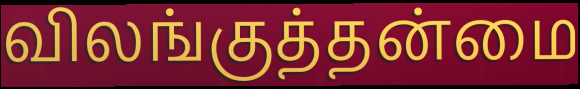
விலங்குத்தன்மை